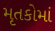
મૃતકોમાં